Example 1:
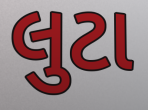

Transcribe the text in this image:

લુટા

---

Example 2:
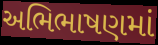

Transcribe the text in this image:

અભિભાષણમાં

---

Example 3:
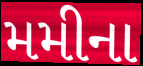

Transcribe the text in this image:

મમીના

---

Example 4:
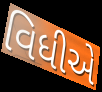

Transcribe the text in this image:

વિધીએ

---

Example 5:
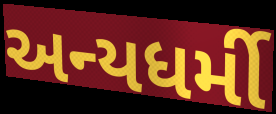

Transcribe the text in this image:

અન્યધર્મી